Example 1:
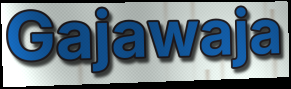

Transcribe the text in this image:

Gajawaja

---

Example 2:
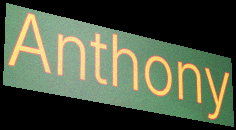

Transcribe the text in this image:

Anthony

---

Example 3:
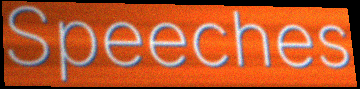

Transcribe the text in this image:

Speeches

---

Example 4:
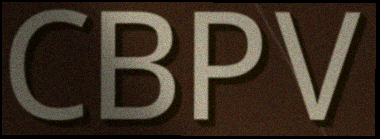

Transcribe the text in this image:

CBPV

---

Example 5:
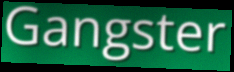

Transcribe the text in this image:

Gangster